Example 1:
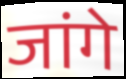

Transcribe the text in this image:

जांगे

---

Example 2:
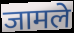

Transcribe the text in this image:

जामले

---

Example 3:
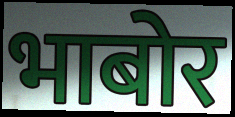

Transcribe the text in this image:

भाबोर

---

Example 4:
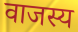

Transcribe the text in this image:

वाजस्य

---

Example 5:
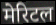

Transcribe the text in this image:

मेरिटल